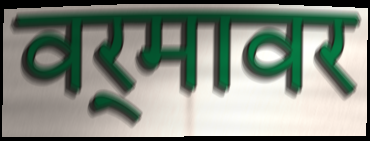
वर्मावर